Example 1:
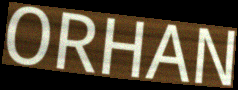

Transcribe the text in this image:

ORHAN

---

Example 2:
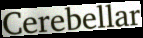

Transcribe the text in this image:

Cerebellar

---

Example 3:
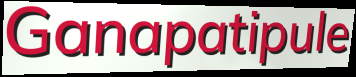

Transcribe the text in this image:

Ganapatipule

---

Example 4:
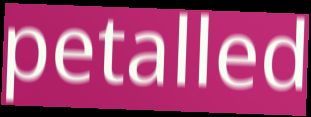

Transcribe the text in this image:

petalled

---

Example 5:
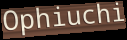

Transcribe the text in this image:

Ophiuchi